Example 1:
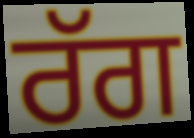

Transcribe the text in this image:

ਰੱਗ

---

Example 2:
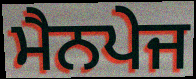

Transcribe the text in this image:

ਮੈਨਪੇਜ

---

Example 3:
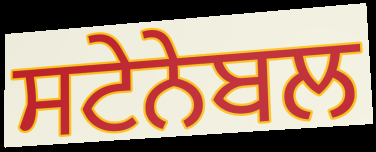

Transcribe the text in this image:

ਸਟੇਨੇਬਲ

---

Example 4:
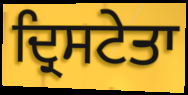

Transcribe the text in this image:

ਦ੍ਰਿਸਟੇਤਾ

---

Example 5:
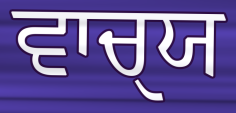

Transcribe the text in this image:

ਵਾਚੑਯ